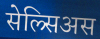
सेल्सिअस